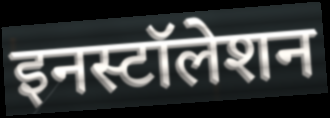
इनस्टॉलेशन